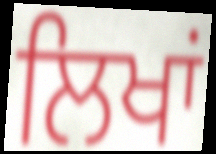
ਲਿਖਾਂ